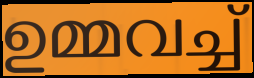
ഉമ്മവച്ച്